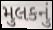
મુલકનું